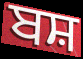
ਬਸ਼